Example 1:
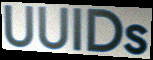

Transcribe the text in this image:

UUIDs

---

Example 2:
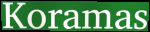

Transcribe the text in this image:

Koramas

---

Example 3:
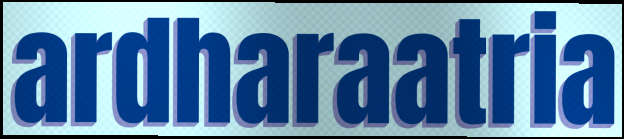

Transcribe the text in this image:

ardharaatria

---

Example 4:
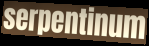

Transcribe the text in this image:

serpentinum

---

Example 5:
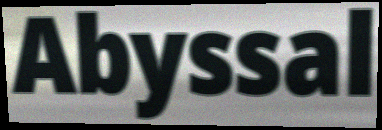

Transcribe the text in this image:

Abyssal